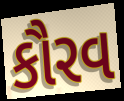
કૌરવ